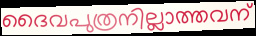
ദൈവപുത്രനില്ലാത്തവന്